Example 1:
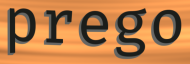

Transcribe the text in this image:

prego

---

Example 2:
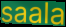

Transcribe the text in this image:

saala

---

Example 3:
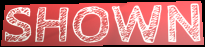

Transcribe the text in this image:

SHOWN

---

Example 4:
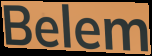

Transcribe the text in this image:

Belem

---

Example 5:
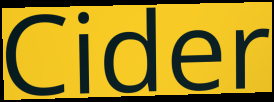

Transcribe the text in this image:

Cider